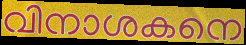
വിനാശകനെ